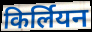
किर्लियन